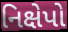
નિક્ષેપો